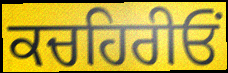
ਕਚਹਿਰੀਓਂ